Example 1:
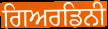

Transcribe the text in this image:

ਗਿਅਰਡਿਨੀ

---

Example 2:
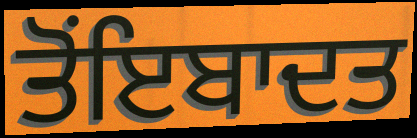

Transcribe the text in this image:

ਤੋਂਇਬਾਦਤ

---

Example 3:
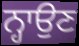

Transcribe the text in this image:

ਨ੍ਹਾਉਣ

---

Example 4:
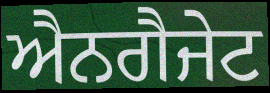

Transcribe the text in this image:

ਐਨਗੈਜੇਟ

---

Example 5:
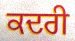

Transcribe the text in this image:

ਕਦਰੀ